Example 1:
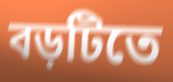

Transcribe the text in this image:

বড়টিতে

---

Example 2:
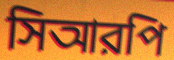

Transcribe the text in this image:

সিআরপি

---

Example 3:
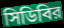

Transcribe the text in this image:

সিডিবির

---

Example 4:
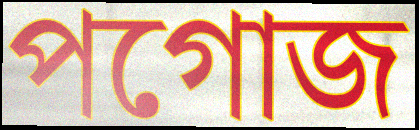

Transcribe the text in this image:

পগোজ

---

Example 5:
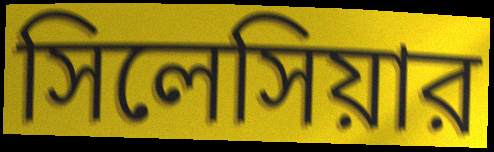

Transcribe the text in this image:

সিলেসিয়ার